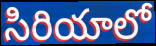
సిరియాలో